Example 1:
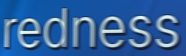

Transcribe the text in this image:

redness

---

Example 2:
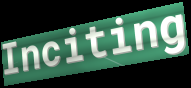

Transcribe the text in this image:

Inciting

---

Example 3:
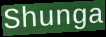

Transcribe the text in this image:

Shunga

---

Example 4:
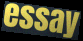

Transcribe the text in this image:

essay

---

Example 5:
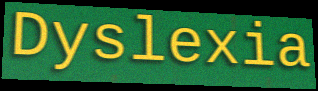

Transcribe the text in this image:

Dyslexia